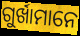
ଗୁର୍ଖାମାନେ